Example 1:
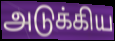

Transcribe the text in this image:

அடுக்கிய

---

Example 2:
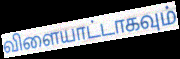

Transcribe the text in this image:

விளையாட்டாகவும்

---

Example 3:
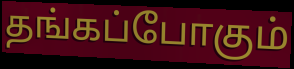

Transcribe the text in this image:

தங்கப்போகும்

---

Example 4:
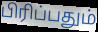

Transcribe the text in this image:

பிரிப்பதும்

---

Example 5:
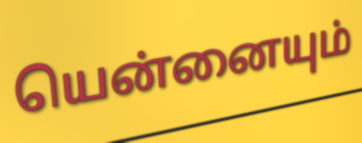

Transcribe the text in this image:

யென்னையும்